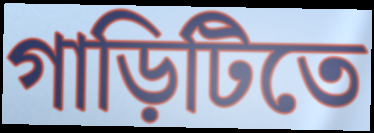
গাড়িটিতে